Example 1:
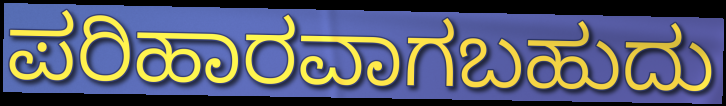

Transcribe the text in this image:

ಪರಿಹಾರವಾಗಬಹುದು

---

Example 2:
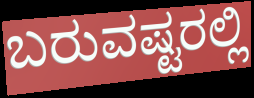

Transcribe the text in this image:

ಬರುವಷ್ಟರಲ್ಲಿ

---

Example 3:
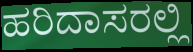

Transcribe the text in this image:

ಹರಿದಾಸರಲ್ಲಿ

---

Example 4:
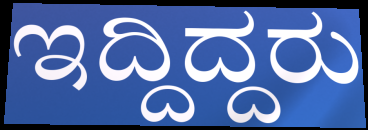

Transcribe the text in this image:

ಇದ್ದಿದ್ದರು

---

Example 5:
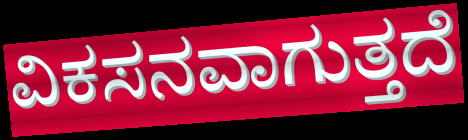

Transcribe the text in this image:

ವಿಕಸನವಾಗುತ್ತದೆ